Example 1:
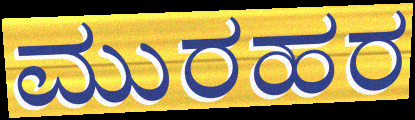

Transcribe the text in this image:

ಮುರಹರ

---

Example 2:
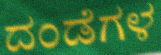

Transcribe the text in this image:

ದಂಡೆಗಳ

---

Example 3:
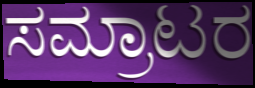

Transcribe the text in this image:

ಸಮ್ರಾಟರ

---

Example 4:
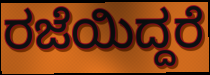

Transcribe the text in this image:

ರಜೆಯಿದ್ದರೆ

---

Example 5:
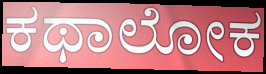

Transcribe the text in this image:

ಕಥಾಲೋಕ